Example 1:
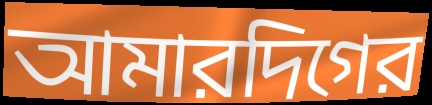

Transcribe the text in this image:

আমারদিগের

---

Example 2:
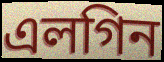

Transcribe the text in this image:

এলগিন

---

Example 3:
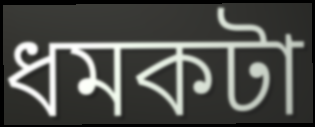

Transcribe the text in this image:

ধমকটা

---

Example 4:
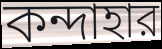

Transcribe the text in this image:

কন্দাহার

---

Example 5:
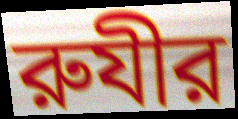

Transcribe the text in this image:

রুযীর